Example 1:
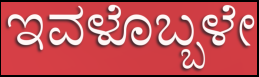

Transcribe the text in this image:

ಇವಳೊಬ್ಬಳೇ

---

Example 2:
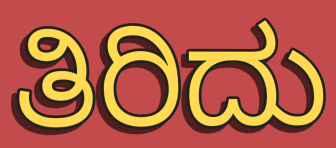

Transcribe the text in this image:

ತಿರಿದು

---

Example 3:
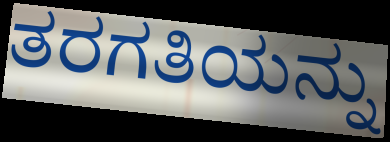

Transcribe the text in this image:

ತರಗತಿಯನ್ನು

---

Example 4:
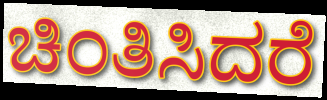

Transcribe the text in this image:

ಚಿಂತಿಸಿದರೆ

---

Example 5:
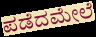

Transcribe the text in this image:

ಪಡೆದಮೇಲೆ